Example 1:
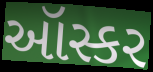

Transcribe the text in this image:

ઑસ્કર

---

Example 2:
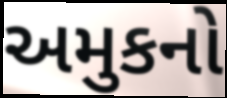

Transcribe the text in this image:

અમુકનો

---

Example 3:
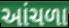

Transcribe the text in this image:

આંચળા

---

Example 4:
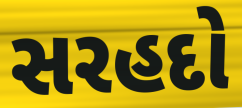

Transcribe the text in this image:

સરહદો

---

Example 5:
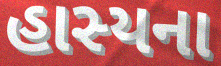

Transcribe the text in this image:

હાસ્યના